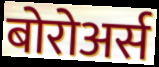
बोरोअर्स